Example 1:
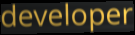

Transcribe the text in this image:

developer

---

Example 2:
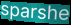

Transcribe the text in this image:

sparshe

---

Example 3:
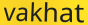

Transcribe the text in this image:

vakhat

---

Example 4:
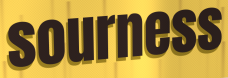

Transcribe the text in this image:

sourness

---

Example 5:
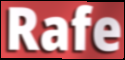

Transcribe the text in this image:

Rafe